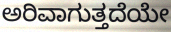
ಅರಿವಾಗುತ್ತದೆಯೇ